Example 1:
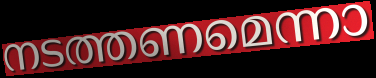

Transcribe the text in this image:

നടത്തണമെന്നാ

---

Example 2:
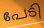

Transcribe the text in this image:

പേടി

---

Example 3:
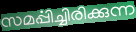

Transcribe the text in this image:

സമൎപ്പിച്ചിരിക്കുന്ന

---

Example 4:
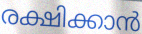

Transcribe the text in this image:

രക്ഷിക്കാൻ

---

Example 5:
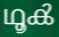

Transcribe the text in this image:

ഥൂൿ